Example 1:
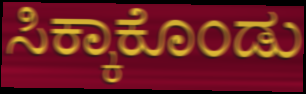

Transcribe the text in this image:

ಸಿಕ್ಕಾಕೊಂಡು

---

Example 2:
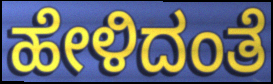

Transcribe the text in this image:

ಹೇಳಿದಂತೆ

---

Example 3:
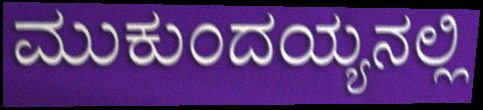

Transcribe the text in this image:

ಮುಕುಂದಯ್ಯನಲ್ಲಿ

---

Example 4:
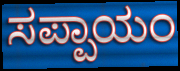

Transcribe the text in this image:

ಸಪ್ಪಾಯಂ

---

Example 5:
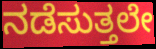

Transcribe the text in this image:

ನಡೆಸುತ್ತಲೇ